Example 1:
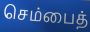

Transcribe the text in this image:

செம்பைத்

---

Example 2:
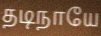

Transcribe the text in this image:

தடிநாயே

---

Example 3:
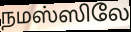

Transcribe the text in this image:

நமஸ்ஸிலே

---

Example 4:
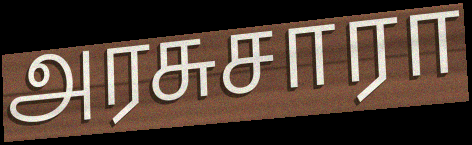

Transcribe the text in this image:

அரசுசாரா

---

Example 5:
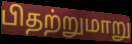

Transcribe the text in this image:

பிதற்றுமாறு